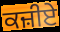
ਕਜ਼ੀਏ